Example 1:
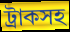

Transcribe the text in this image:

ট্রাকসহ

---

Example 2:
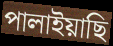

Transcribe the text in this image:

পালাইয়াছি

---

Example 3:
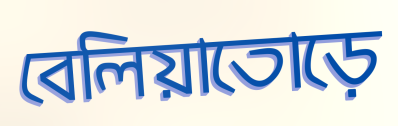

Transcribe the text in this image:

বেলিয়াতোড়ে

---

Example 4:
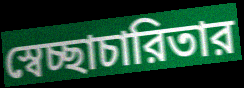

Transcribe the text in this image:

স্বেচ্ছাচারিতার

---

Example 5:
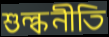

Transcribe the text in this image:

শুল্কনীতি